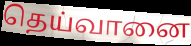
தெய்வானை